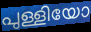
പുള്ളിയോ